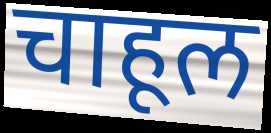
चाहूल